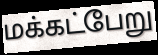
மக்கட்பேறு